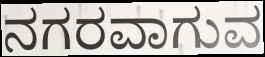
ನಗರವಾಗುವ